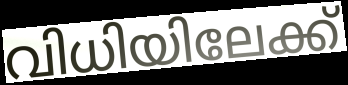
വിധിയിലേക്ക്